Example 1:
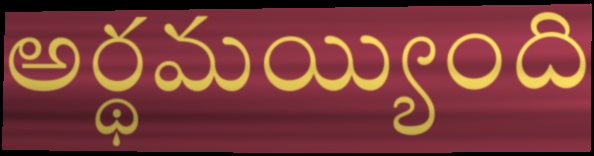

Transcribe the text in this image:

అర్థమయ్యింది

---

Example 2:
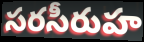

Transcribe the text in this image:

సరసీరుహ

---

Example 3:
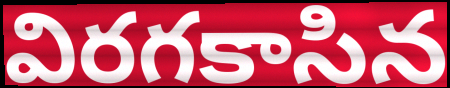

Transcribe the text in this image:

విరగకాసిన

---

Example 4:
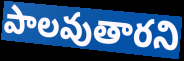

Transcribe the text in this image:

పాలవుతారని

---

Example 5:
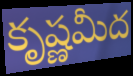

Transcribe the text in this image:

కృష్ణమీద